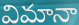
విమానా